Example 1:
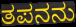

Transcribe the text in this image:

ತಪನನು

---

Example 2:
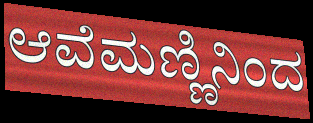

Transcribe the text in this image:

ಆವೆಮಣ್ಣಿನಿಂದ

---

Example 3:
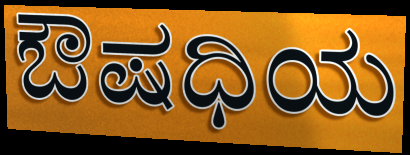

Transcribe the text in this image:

ಔಷಧಿಯ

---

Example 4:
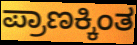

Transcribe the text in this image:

ಪ್ರಾಣಕ್ಕಿಂತ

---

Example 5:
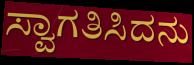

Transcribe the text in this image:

ಸ್ವಾಗತಿಸಿದನು